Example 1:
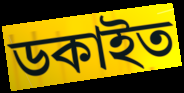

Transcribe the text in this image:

ডকাইত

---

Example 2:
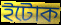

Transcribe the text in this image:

ইটোক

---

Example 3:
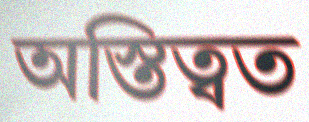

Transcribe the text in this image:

অস্তিত্বত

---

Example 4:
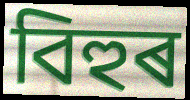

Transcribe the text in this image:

বিহুৰ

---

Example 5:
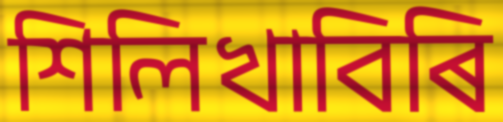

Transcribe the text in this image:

শিলিখাবিৰি